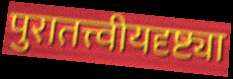
पुरातत्त्वीयदृष्ट्या